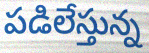
పడిలేస్తున్న